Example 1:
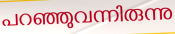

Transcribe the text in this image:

പറഞ്ഞുവന്നിരുന്നു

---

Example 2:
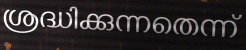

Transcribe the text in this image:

ശ്രദ്ധിക്കുന്നതെന്ന്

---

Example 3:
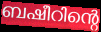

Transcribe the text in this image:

ബഷീറിന്റെ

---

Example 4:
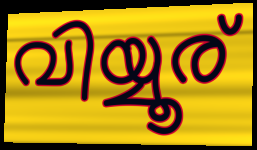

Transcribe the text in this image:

വിയ്യൂര്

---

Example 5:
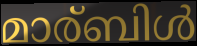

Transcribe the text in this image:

മാര്ബിൾ